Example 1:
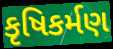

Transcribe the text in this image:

કૃષિકર્મણ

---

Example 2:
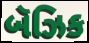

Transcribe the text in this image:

બૅઝિક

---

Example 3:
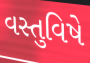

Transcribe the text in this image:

વસ્તુવિષે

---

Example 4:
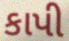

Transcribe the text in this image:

કાપી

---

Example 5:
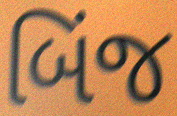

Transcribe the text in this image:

બિંજ